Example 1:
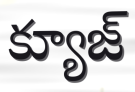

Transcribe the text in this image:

క్యూజ్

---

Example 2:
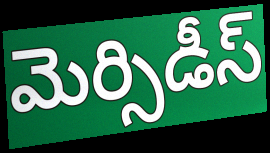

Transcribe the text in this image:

మెర్సిడీస్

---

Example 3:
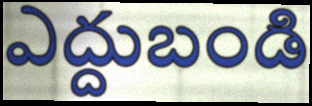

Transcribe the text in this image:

ఎద్దుబండి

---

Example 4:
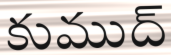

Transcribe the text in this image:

కుముద్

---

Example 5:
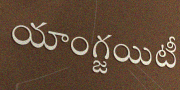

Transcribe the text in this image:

యాంగ్జయిటీ